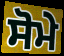
ਸੋਮੇ